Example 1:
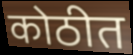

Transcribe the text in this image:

कोठीत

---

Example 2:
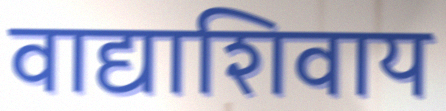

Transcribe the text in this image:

वाद्याशिवाय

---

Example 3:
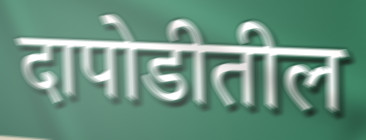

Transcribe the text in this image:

दापोडीतील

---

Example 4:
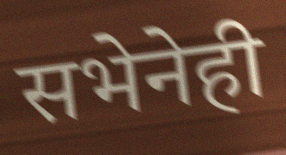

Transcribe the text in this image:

सभेनेही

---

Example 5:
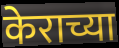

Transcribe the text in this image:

केराच्या